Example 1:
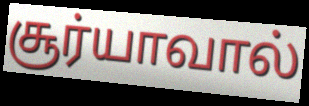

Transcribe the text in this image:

சூர்யாவால்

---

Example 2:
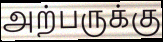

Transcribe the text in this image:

அற்பருக்கு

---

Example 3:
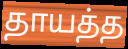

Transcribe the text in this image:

தாயத்த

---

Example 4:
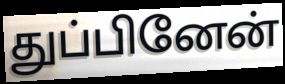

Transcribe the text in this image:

துப்பினேன்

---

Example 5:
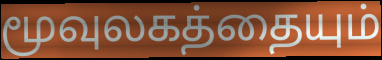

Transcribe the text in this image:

மூவுலகத்தையும்